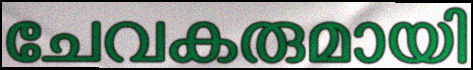
ചേവകരുമായി